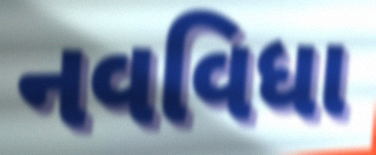
નવવિધા